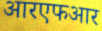
आरएफआर